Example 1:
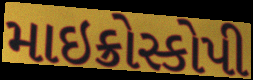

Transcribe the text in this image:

માઇક્રોસ્કોપી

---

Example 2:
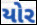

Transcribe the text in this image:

યોર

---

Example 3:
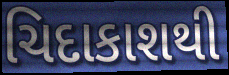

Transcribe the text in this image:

ચિદાકાશથી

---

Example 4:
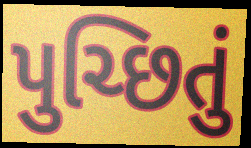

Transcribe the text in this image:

પુચ્છિતું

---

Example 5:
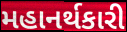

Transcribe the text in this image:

મહાનર્થકારી